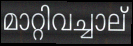
മാറ്റിവച്ചാല്